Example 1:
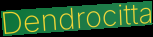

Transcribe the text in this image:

Dendrocitta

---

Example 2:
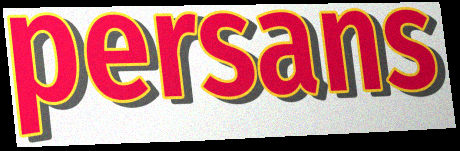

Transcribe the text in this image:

persans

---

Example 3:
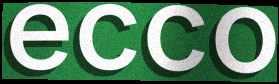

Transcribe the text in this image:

ecco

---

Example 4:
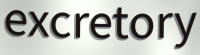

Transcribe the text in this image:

excretory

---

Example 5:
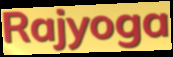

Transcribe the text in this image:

Rajyoga